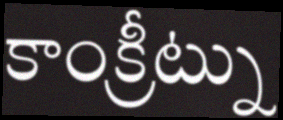
కాంక్రీట్ను